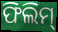
ଫିଲିମ୍